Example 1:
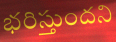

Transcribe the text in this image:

భరిస్తుందని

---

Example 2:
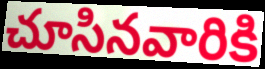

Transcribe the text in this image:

చూసినవారికి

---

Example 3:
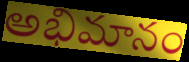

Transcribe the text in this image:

అభిమానం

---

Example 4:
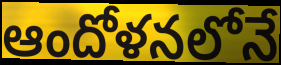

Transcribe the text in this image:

ఆందోళనలోనే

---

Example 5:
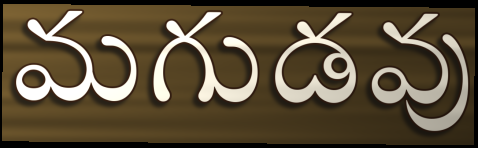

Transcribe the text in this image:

మగుడవు